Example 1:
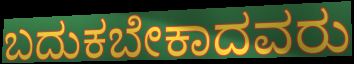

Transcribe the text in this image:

ಬದುಕಬೇಕಾದವರು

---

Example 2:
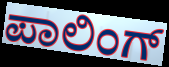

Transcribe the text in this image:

ಪಾಲಿಂಗ್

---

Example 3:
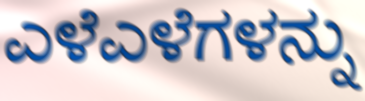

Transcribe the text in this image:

ಎಳೆಎಳೆಗಳನ್ನು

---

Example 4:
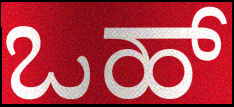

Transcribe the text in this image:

ಒಹ್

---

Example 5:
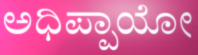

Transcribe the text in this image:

ಅಧಿಪ್ಪಾಯೋ